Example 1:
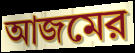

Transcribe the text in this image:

আজমের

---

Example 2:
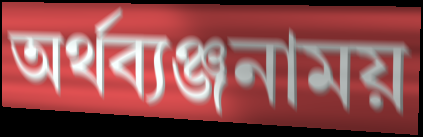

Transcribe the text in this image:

অর্থব্যঞ্জনাময়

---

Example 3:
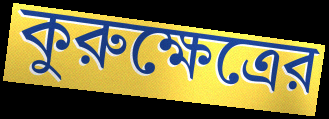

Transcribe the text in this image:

কুরুক্ষেত্রের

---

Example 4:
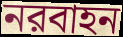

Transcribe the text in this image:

নরবাহন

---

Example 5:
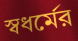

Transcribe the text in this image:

স্বধর্মের